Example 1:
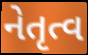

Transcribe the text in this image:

નેતૃત્વ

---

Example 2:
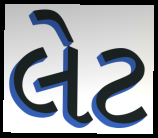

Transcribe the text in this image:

લેટ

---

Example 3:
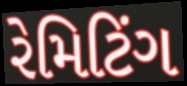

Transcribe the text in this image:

રેમિટિંગ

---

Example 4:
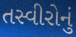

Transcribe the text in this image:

તસ્વીરોનું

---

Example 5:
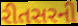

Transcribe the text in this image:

રીતસરની